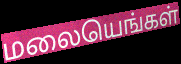
மலையெங்கள்